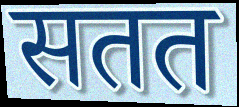
सतत